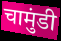
चामुंडी